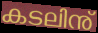
കടലിനു്